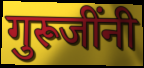
गुरूजींनी